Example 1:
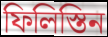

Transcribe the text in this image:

ফিলিস্তিন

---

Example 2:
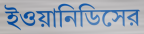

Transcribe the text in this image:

ইওয়ানিডিসের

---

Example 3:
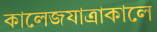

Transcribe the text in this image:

কালেজযাত্রাকালে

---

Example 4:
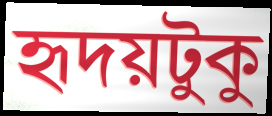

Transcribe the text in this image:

হৃদয়টুকু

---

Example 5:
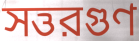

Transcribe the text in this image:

সত্তরগুণ